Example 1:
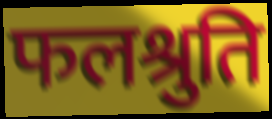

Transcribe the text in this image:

फलश्रुति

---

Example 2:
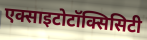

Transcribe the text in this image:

एक्साइटोटॉक्सिसिटी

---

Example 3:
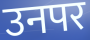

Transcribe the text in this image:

उनपर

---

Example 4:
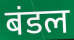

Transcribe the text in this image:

बंडल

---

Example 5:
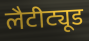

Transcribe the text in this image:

लैटीट्यूड